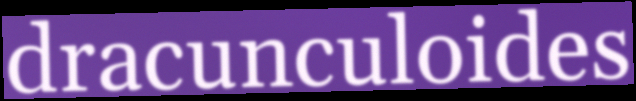
dracunculoides